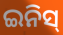
ଇନିସ୍